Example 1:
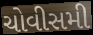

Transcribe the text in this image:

ચોવીસમી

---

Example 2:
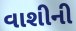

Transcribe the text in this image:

વાશીની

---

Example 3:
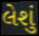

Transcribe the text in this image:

લેશું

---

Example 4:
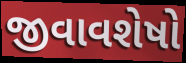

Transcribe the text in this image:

જીવાવશેષો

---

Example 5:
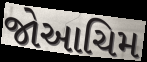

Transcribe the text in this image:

જોઆચિમ